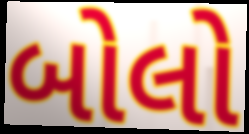
બોલો